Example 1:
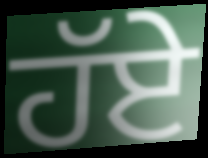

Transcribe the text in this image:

ਹੱਏ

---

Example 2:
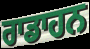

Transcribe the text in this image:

ਰਾਡਾਹਨ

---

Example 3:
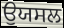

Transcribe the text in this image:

ਉਯਸਲ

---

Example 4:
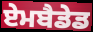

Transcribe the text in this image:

ਏਮਬੈਡੇਡ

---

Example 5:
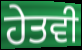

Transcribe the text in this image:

ਹੇਤਵੀ